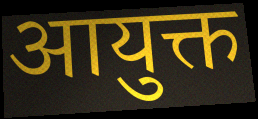
आयुक्त